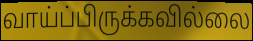
வாய்ப்பிருக்கவில்லை